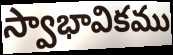
స్వాభావికము